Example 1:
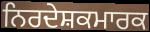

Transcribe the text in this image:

ਨਿਰਦੇਸ਼ਕਮਾਰਕ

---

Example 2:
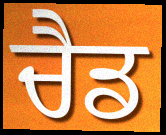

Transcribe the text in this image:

ਚੈਡ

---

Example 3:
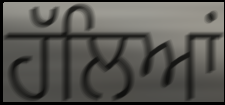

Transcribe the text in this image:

ਹੱਲਿਆਂ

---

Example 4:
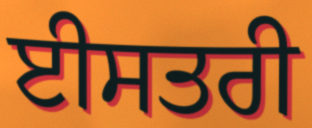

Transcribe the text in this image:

ਈਸਤਰੀ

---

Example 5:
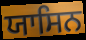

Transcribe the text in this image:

ਯਾਸਿਨ